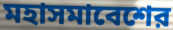
মহাসমাবেশের